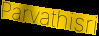
Parvathisri